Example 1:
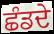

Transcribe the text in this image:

ਛੰਡਦੇ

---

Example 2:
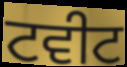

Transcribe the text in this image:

ਟਵੀਟ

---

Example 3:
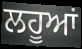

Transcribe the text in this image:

ਲਹੂਆਂ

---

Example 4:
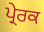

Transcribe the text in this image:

ਪ੍ਰੇਰਕ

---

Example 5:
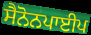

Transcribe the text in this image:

ਸੈਨੋਨਪਾਈਪ